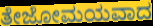
ತೇಜೋಮಯವಾದ